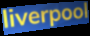
liverpool